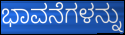
ಭಾವನೆಗಳನ್ನು